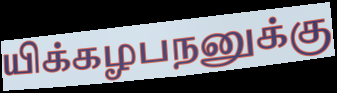
யிக்கழபநனுக்கு